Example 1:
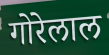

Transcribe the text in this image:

गोरेलाल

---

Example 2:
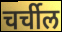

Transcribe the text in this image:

चर्चील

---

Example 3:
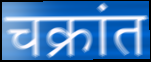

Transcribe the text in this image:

चक्रांत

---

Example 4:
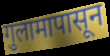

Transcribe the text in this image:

गुलामापासून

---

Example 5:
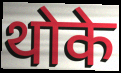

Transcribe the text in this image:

थोके